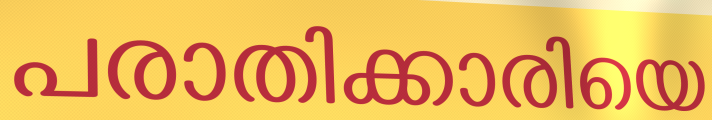
പരാതിക്കാരിയെ